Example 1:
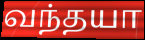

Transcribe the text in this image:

வந்தயா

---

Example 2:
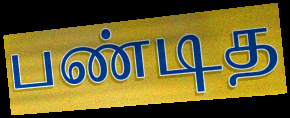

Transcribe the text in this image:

பண்டித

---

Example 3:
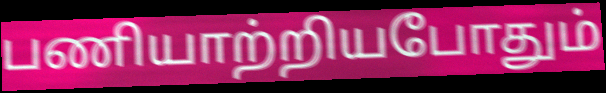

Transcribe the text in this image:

பணியாற்றியபோதும்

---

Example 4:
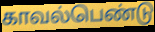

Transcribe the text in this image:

காவல்பெண்டு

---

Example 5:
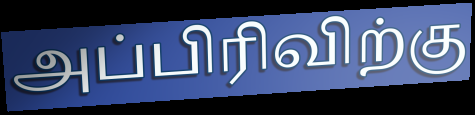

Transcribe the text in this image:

அப்பிரிவிற்கு